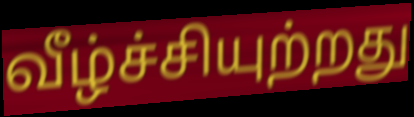
வீழ்ச்சியுற்றது